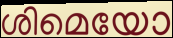
ശിമെയോ